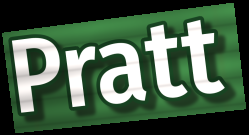
Pratt